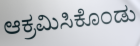
ಆಕ್ರಮಿಸಿಕೊಂಡು